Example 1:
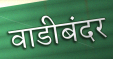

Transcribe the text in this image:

वाडीबंदर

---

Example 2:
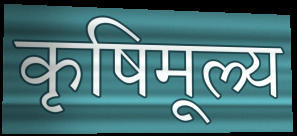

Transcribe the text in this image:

कृषिमूल्य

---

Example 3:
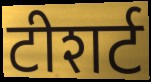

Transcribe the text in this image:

टीशर्ट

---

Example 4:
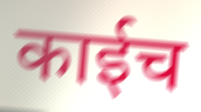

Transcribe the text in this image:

काईच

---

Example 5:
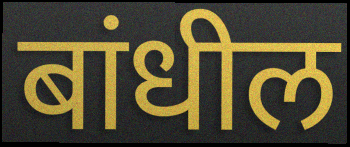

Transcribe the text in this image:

बांधील